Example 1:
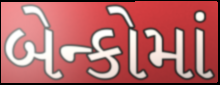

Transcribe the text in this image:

બેન્કોમાં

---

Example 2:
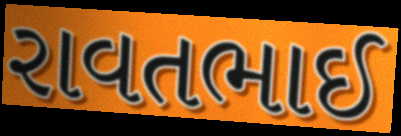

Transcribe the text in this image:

રાવતભાઈ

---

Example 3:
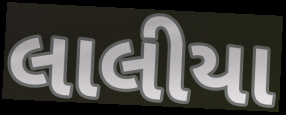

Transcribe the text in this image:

લાલીયા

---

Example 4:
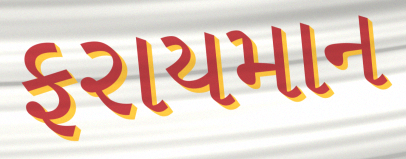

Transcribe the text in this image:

ફરાયમાન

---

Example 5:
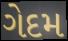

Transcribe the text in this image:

ગેદમ